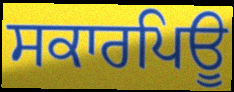
ਸਕਾਰਪਿਊ